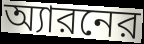
অ্যারনের